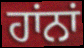
ਹਾਂਨਾਂ